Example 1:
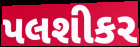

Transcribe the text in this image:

પલશીકર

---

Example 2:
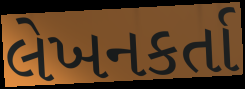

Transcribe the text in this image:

લેખનકર્તા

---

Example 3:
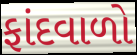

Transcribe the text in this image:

ફાંદવાળો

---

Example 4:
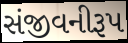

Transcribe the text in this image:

સંજીવનીરૂપ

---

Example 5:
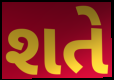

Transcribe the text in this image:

શતે